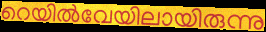
റെയിൽവേയിലായിരുന്നു